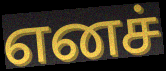
எனச்